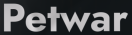
Petwar